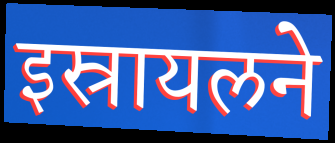
इस्रायलने